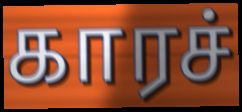
காரச்